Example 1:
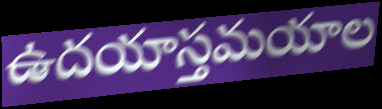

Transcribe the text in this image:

ఉదయాస్తమయాల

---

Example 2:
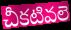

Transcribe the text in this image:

చీకటివలె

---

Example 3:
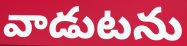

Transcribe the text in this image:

వాడుటను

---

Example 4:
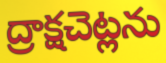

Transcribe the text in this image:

ద్రాక్షచెట్లను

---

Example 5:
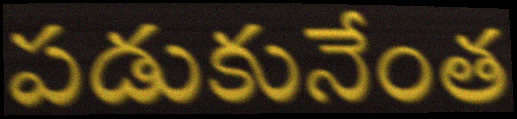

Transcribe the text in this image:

పడుకునేంత